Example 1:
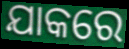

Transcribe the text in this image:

ଯାକରେ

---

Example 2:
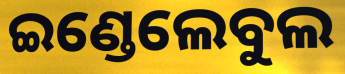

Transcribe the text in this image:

ଇଣ୍ଡେଲେବୁଲ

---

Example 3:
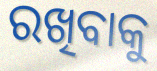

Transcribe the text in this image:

ରଖିବାକୁ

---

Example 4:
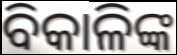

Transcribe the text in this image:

ବିକାଳିଙ୍କ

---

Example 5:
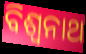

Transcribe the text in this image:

ବିଶ୍ୱନାଥ